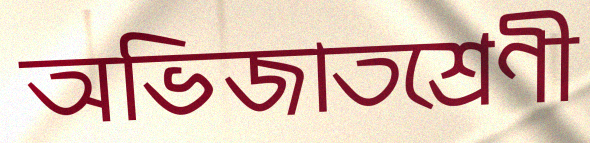
অভিজাতশ্রেণী